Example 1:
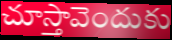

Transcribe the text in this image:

చూస్తావెందుకు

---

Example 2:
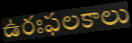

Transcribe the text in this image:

ఉరఃఫలకాలు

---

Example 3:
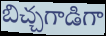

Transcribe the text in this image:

బిచ్చగాడిగా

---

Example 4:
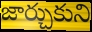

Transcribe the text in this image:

జార్చుకుని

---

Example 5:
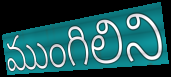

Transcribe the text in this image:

ముంగిలిని